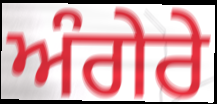
ਅੰਗੇਰੇ